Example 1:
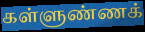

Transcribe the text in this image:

கள்ளுண்ணக்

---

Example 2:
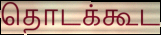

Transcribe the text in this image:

தொடக்கூட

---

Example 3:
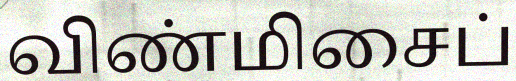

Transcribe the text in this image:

விண்மிசைப்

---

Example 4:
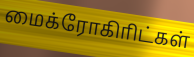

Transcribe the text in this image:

மைக்ரோகிரிட்கள்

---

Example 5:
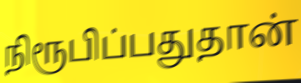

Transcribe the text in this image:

நிரூபிப்பதுதான்